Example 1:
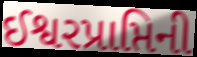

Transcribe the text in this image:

ઈશ્વરપ્રાપ્તિની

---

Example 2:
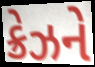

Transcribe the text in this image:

ક્રેઝને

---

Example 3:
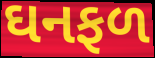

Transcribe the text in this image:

ઘનફળ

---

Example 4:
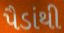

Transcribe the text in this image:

પૈડાંથી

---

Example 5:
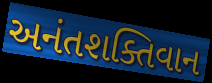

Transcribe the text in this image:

અનંતશક્તિવાન